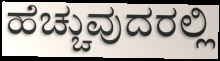
ಹೆಚ್ಚುವುದರಲ್ಲಿ